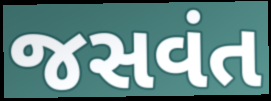
જસવંત